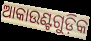
ଆକାଉଣ୍ଟଗୁଡ଼ିକ